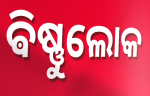
ଵିଷ୍ଣୁଲୋକ